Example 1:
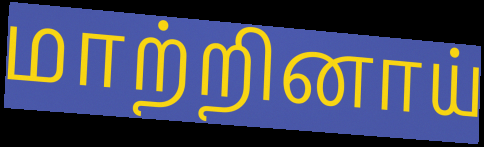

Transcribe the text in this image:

மாற்றினாய்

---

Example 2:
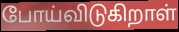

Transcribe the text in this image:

போய்விடுகிறாள்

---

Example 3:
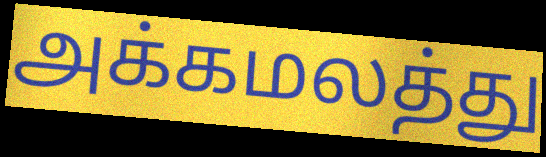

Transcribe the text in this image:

அக்கமலத்து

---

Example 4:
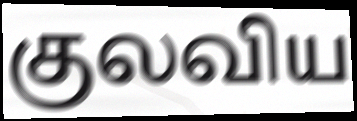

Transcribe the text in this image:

குலவிய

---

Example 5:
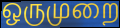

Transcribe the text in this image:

ஒருமுறை